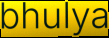
bhulya